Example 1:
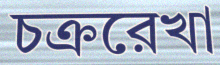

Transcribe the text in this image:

চক্ররেখা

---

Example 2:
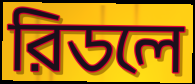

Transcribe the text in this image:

রিডলে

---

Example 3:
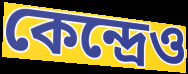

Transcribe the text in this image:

কেন্দ্রেও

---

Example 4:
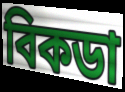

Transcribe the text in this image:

বিকডা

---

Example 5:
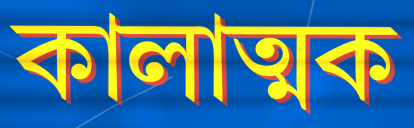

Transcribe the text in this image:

কালাত্মক